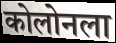
कोलोनला